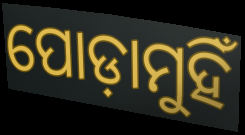
ପୋଡ଼ାମୁହିଁ